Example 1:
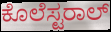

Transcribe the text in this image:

ಕೊಲೆಸ್ಟರಾಲ್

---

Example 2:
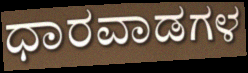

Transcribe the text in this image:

ಧಾರವಾಡಗಳ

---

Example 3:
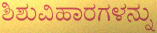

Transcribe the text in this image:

ಶಿಶುವಿಹಾರಗಳನ್ನು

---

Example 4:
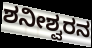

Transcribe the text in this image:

ಶನೀಶ್ವರನ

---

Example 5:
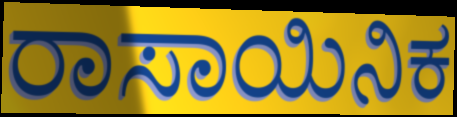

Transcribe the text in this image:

ರಾಸಾಯಿನಿಕ